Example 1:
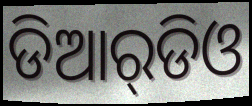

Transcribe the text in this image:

ଡିଆର୍‌ଡିଓ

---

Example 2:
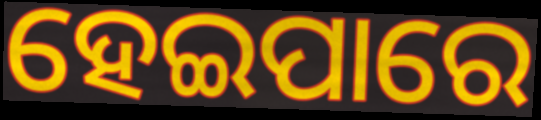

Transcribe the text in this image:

ହେଇପାରେ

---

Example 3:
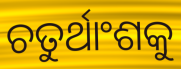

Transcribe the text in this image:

ଚତୁର୍ଥାଂଶକୁ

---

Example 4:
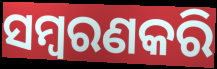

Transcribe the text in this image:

ସମ୍ବରଣକରି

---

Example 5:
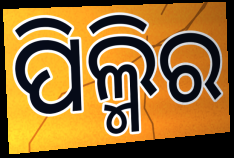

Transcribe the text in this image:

ପିଲ୍ମିର